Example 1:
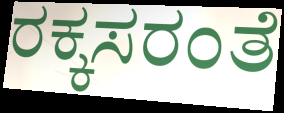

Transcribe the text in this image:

ರಕ್ಕಸರಂತೆ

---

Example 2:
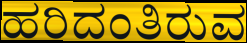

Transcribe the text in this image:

ಹರಿದಂತಿರುವ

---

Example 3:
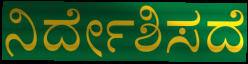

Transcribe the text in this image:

ನಿರ್ದೇಶಿಸದೆ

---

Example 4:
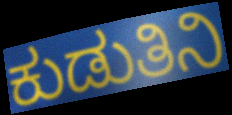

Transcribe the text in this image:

ಕುಡುತಿನಿ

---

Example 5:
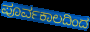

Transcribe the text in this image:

ಪೂರ್ವಕಾಲದಿಂದ